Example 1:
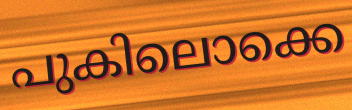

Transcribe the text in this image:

പുകിലൊക്കെ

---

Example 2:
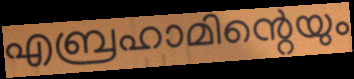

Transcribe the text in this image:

എബ്രഹാമിന്റെയും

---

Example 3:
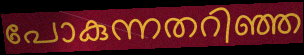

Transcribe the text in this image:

പോകുന്നതറിഞ്ഞ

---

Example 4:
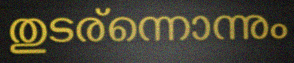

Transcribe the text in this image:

തുടര്ന്നൊന്നും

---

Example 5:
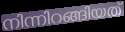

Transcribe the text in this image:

നിന്നിറങ്ങിയത്